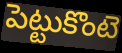
పెట్టుకొంటె